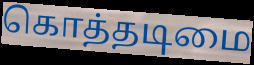
கொத்தடிமை